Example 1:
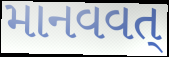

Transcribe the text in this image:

માનવવત્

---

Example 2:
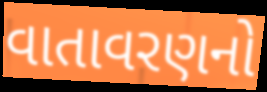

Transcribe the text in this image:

વાતાવરણનો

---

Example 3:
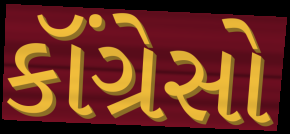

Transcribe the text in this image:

કૉંગ્રેસો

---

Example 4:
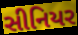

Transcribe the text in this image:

સીનિયર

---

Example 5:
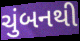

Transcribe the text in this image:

ચુંબનથી